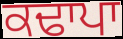
ਕਢਾਪਾ